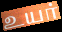
உயர்